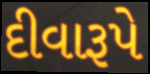
દીવારૂપે